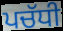
ਪਚੱਧੀ